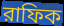
রাফিক